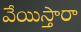
వేయిస్తారా